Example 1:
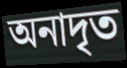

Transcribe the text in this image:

অনাদৃত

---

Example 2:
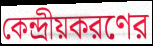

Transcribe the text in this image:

কেন্দ্রীয়করণের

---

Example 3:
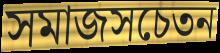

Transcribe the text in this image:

সমাজসচেতন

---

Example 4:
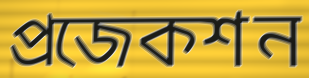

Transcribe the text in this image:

প্রজেকশন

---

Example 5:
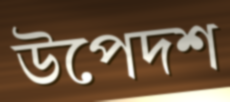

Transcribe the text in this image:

উপেদশ